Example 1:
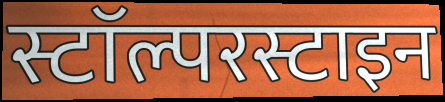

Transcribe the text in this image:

स्टॉल्परस्टाइन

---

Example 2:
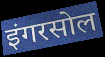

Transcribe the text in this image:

इंगरसोल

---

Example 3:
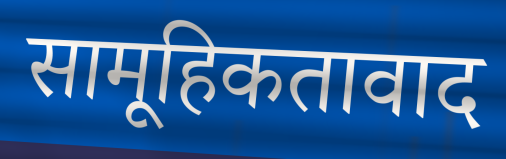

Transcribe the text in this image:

सामूहिकतावाद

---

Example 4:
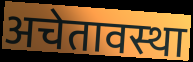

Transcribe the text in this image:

अचेतावस्था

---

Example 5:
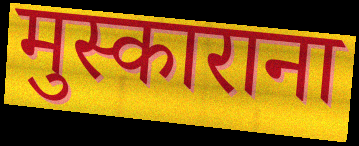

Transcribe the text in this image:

मुस्काराना